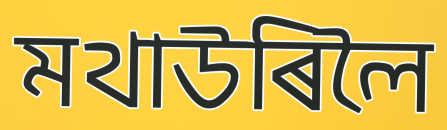
মথাউৰিলৈ